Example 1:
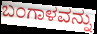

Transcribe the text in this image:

ಬಂಗಾಳವನ್ನು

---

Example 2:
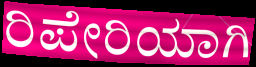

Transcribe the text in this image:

ರಿಪೇರಿಯಾಗಿ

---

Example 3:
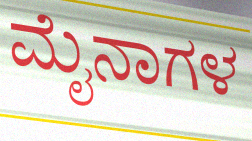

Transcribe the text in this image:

ಮೈನಾಗಳ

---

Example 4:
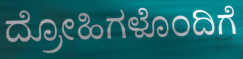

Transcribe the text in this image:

ದ್ರೋಹಿಗಳೊಂದಿಗೆ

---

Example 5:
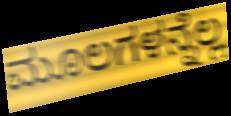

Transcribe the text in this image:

ಮೂಲಗಳನ್ನೆಲ್ಲ